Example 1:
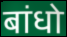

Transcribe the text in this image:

बांधो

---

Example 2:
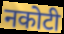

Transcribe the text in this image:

नकोटी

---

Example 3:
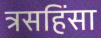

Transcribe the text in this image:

त्रसहिंसा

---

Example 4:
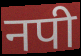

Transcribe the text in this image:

नपी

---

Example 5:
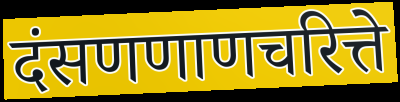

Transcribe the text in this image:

दंसणणाणचरित्ते